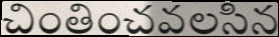
చింతించవలసిన